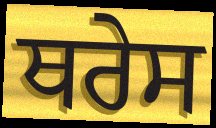
ਥਰੇਸ